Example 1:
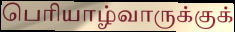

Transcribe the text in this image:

பெரியாழ்வாருக்குக்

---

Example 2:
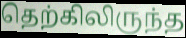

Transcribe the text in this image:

தெற்கிலிருந்த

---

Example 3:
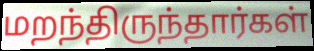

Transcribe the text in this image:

மறந்திருந்தார்கள்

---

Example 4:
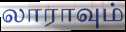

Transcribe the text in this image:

லாராவும்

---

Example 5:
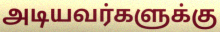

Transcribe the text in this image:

அடியவர்களுக்கு